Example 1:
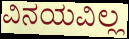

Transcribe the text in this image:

ವಿನಯವಿಲ್ಲ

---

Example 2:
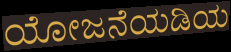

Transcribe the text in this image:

ಯೋಜನೆಯಡಿಯ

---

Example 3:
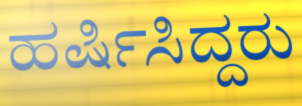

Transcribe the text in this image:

ಹರ್ಷಿಸಿದ್ದರು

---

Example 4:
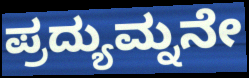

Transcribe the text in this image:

ಪ್ರದ್ಯುಮ್ನನೇ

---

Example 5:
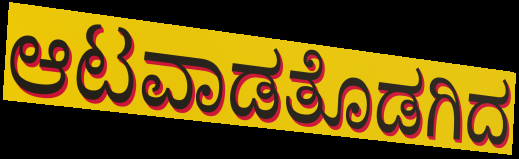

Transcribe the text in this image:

ಆಟವಾಡತೊಡಗಿದ